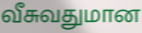
வீசுவதுமான